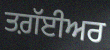
ਤਗ਼ੱਈਅਰ